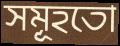
সমূহতো